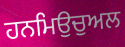
ਹਨਮਿਉਚੁਅਲ